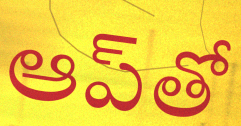
ఆప్‌తో